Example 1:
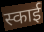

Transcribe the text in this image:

स्काई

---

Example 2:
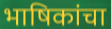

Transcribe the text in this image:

भाषिकांचा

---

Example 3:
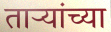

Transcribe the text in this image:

तार्‍यांच्या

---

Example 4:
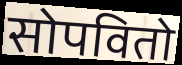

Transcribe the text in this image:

सोपवितो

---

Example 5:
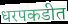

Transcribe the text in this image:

धरपकडीत